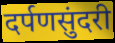
दर्पणसुंदरी